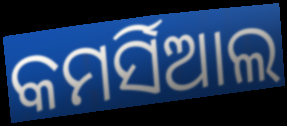
କମର୍ସିଆଲ